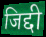
जिद्दी